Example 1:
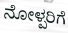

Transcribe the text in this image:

ನೋಳ್ಪರಿಗೆ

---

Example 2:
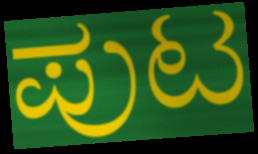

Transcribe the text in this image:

ಪುಟ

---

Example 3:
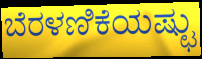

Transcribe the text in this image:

ಬೆರಳಣಿಕೆಯಷ್ಟು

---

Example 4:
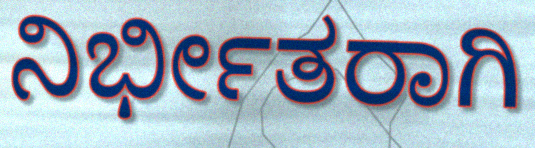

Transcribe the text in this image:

ನಿರ್ಭೀತರಾಗಿ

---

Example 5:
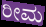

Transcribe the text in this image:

ರೀಮ